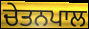
ਚੇਤਨਪਾਲ